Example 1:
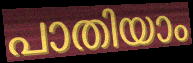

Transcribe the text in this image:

പാതിയാം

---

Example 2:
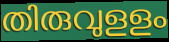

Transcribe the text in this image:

തിരുവുളളം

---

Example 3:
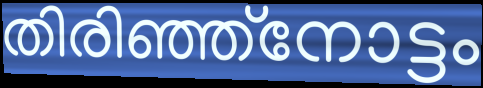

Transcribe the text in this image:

തിരിഞ്ഞ്നോട്ടം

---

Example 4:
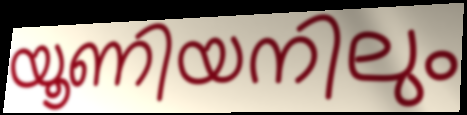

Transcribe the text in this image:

യൂണിയനിലും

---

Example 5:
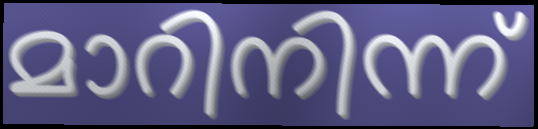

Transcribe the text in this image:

മാറിനിന്ന്